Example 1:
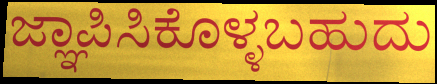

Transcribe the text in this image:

ಜ್ಞಾಪಿಸಿಕೊಳ್ಳಬಹುದು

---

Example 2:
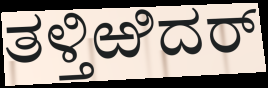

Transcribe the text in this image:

ತಳ್ತಿಱಿದರ್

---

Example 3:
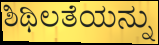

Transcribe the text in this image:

ಶಿಥಿಲತೆಯನ್ನು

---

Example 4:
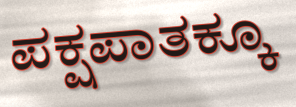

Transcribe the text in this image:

ಪಕ್ಷಪಾತಕ್ಕೂ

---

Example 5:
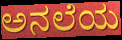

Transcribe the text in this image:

ಅನಲೆಯ